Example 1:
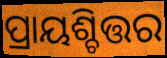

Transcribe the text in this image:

ପ୍ରାୟଶ୍ଚିତ୍ତର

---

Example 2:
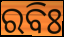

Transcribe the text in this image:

ରବିଃ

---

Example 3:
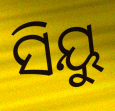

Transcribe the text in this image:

ସିୟୁ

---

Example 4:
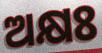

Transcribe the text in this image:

ଅକ୍ଷଃ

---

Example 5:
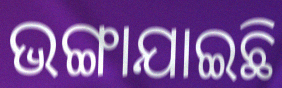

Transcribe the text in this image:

ଭଙ୍ଗାଯାଇଛି